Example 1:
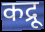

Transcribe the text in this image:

कद्रू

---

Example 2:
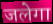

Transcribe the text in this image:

जलेगा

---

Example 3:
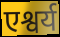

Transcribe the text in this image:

एश्वर्य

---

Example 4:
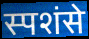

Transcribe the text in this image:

स्पशंसे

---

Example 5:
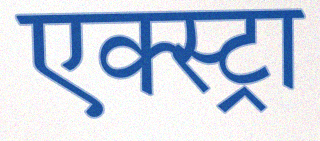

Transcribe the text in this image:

एक्स्ट्रा